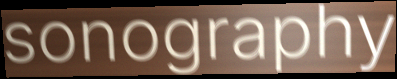
sonography